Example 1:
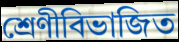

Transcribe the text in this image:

শ্রেণীবিভাজিত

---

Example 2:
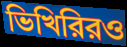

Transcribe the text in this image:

ভিখিরিরও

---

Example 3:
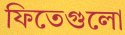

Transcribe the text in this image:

ফিতেগুলো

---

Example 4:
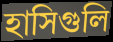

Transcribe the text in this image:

হাসিগুলি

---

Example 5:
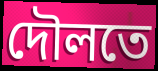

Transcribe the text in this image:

দৌলতে